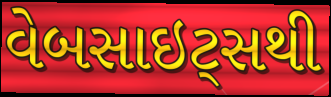
વેબસાઇટ્સથી